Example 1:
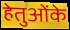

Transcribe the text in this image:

हेतुओंके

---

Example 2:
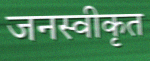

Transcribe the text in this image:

जनस्वीकृत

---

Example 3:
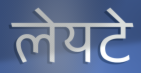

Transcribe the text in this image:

लेयटे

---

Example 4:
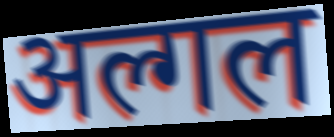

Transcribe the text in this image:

अल्गल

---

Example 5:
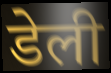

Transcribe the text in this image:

डेली